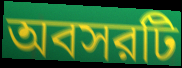
অবসরটি